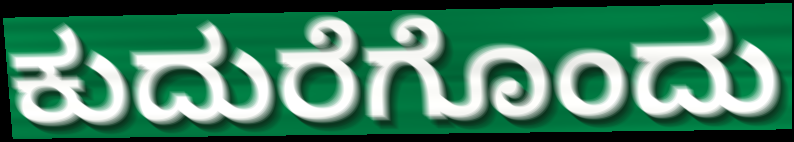
ಕುದುರೆಗೊಂದು